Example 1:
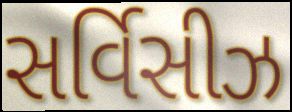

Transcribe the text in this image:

સર્વિસીઝ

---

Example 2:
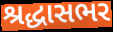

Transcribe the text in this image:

શ્રદ્ધાસભર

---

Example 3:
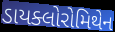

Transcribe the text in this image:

ડાયક્લોરોમિથેન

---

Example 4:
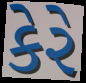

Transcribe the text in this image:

કેરે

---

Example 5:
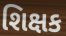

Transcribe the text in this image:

શિક્ષક